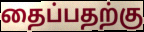
தைப்பதற்கு